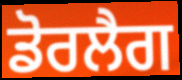
ਡੋਰਲੈਗ